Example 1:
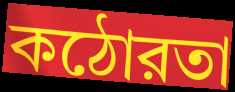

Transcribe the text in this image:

কঠোরতা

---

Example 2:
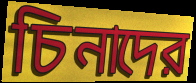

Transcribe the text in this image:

চিনাদের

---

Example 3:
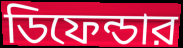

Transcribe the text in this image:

ডিফেন্ডার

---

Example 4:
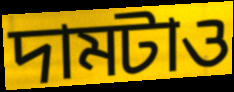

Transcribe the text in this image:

দামটাও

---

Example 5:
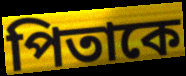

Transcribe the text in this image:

পিতাকে